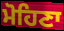
ਮੋਹਿਣਾ